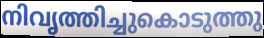
നിവൃത്തിച്ചുകൊടുത്തു